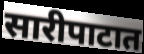
सारीपाटात